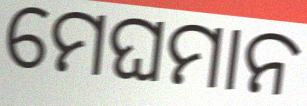
ମେଘମାନ